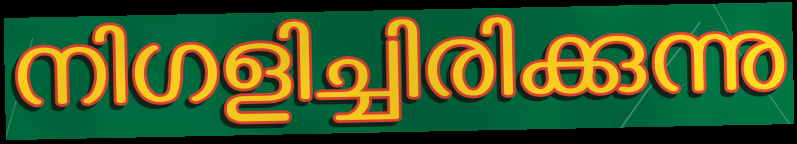
നിഗളിച്ചിരിക്കുന്നു